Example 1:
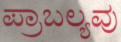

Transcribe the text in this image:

ಪ್ರಾಬಲ್ಯವು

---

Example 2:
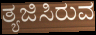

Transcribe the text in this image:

ತ್ಯಜಿಸಿರುವ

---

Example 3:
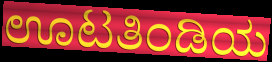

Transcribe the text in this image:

ಊಟತಿಂಡಿಯ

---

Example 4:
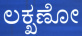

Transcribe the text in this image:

ಲಕ್ಖಣೋ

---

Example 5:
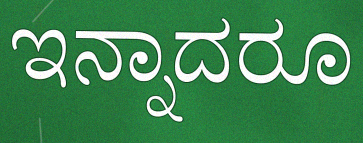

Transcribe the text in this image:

ಇನ್ನಾದರೂ